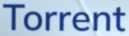
Torrent